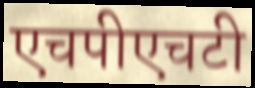
एचपीएचटी